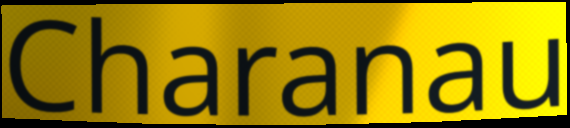
Charanau